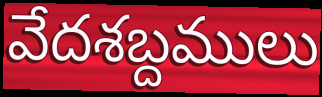
వేదశబ్దములు